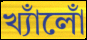
খ্যাঁলোঁ